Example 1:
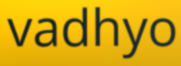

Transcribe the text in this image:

vadhyo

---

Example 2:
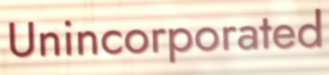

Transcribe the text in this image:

Unincorporated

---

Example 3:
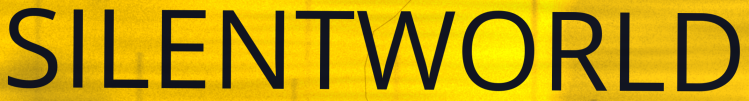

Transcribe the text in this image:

SILENTWORLD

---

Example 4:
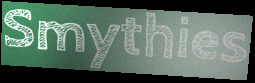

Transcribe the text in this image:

Smythies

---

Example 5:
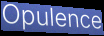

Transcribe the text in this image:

Opulence